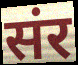
संर